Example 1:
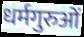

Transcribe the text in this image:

धर्मगुरुओं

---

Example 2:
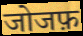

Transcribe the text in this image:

जोजफ़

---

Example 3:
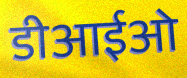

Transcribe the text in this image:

डीआईओ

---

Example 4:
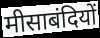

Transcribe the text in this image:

मीसाबंदियों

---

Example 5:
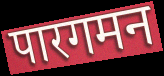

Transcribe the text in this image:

पारगमन